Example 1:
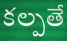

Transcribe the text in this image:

కల్పతే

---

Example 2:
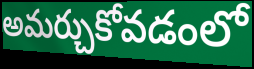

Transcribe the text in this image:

అమర్చుకోవడంలో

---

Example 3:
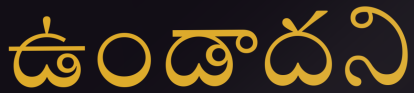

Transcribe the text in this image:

ఉండాదని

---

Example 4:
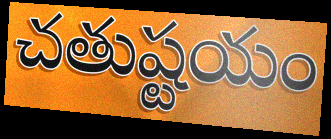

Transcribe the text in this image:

చతుష్టయం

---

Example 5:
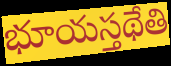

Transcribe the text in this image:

భూయస్తథేతి